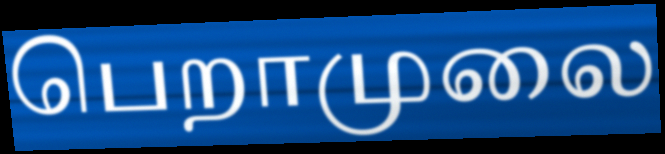
பெறாமுலை